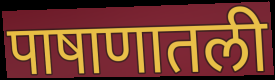
पाषाणातली